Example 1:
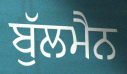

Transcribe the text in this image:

ਬੁੱਲਮੈਨ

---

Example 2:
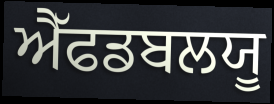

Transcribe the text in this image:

ਐੱਫਡਬਲਯੂ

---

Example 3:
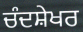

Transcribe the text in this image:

ਚੰਦਸ਼ੇਖਰ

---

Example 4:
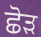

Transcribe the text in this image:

ਛੋੜ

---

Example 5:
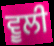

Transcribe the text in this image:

ਵੂਲੀ